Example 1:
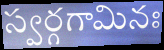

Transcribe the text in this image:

స్వర్గగామినః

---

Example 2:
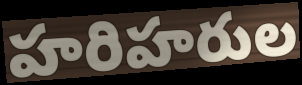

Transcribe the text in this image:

హరిహరుల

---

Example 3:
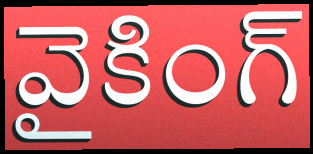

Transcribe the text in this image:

వైకింగ్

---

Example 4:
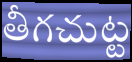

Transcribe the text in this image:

తీగచుట్ట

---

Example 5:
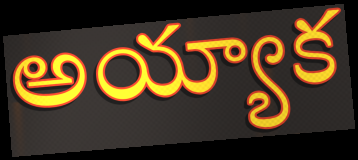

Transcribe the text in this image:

అయ్యాక